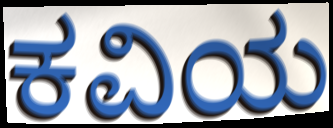
ಕವಿಯ